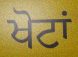
ਖੋਟਾਂ